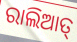
ରାଲିଆତ୍